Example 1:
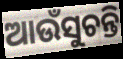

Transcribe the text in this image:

ଆଉଁସୁଚନ୍ତି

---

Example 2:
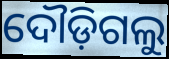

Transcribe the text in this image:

ଦୌଡ଼ିଗଲୁ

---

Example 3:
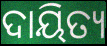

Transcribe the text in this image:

ଦାୟିତ୍ୟ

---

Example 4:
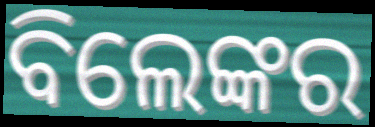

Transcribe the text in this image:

ବିଲେଙ୍କର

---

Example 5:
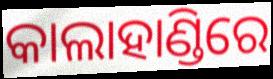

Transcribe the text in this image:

କାଲାହାଣ୍ଡିରେ